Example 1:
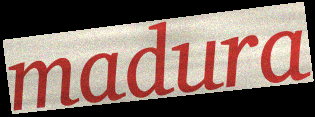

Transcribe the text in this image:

madura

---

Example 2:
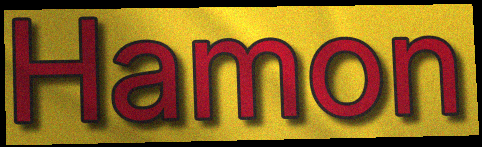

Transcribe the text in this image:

Hamon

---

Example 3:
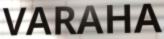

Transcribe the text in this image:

VARAHA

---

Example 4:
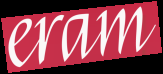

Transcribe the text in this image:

eram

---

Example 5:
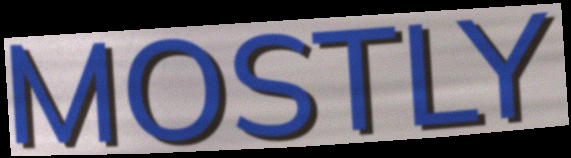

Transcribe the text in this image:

MOSTLY